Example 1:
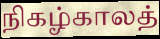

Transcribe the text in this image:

நிகழ்காலத்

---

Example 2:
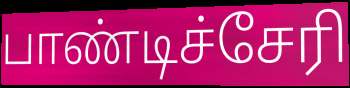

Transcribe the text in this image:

பாண்டிச்சேரி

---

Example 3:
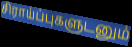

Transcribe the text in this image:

சிராய்ப்புகளுடனும்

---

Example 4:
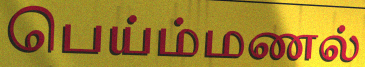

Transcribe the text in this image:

பெய்ம்மணல்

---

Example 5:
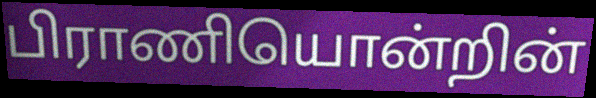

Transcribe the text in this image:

பிராணியொன்றின்